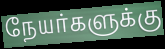
நேயர்களுக்கு